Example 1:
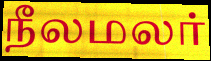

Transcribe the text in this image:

நீலமலர்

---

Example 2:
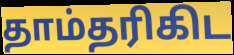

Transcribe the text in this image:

தாம்தரிகிட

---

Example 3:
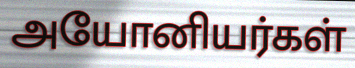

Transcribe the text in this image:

அயோனியர்கள்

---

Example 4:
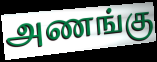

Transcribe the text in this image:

அணங்கு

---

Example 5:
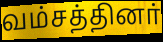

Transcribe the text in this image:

வம்சத்தினர்